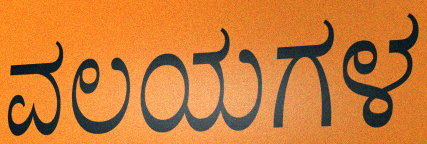
ವಲಯಗಳ